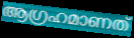
ആഗ്രഹമാണത്